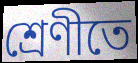
শ্রেণীতে